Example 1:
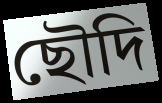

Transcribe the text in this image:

ছৌদি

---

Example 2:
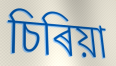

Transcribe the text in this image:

চিৰিয়া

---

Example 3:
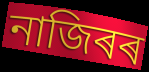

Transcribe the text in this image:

নাজিৰৰ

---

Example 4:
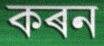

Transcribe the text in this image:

কৰন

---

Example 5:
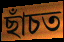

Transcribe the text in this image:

ছাঁচত